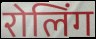
रोलिंग